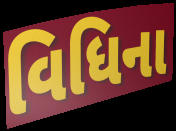
વિધિના